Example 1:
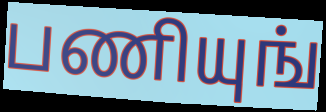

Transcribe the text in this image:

பணியுங்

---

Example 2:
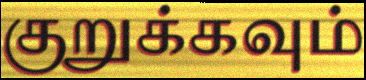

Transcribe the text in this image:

குறுக்கவும்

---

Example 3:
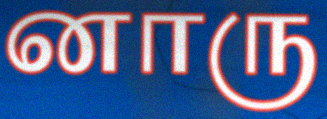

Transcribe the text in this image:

னாரு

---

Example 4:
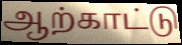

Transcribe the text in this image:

ஆற்காட்டு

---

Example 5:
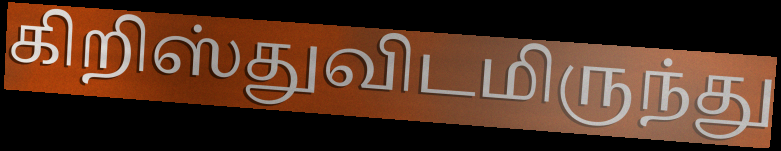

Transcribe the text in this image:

கிறிஸ்துவிடமிருந்து